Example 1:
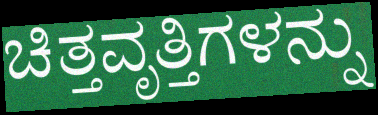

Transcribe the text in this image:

ಚಿತ್ತವೃತ್ತಿಗಳನ್ನು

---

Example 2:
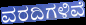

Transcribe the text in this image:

ವರದಿಗಳಿವೆ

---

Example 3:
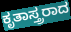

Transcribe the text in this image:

ಕೃತಾಸ್ತ್ರರಾದ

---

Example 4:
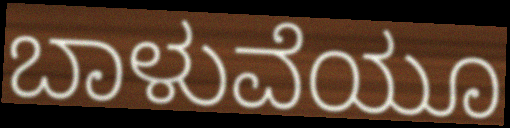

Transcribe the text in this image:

ಬಾಳುವೆಯೂ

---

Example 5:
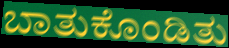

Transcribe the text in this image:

ಬಾತುಕೊಂಡಿತು